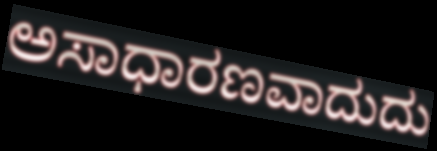
ಅಸಾಧಾರಣವಾದುದು